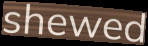
shewed